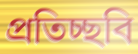
প্ৰতিচ্ছবি